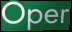
Oper